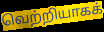
வெற்றியாகக்